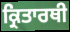
ਕ੍ਰਿਤਾਰਥੀ